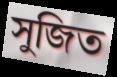
সুজিত